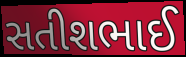
સતીશભાઈ